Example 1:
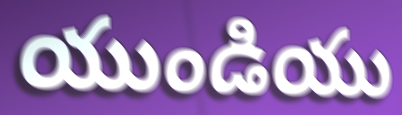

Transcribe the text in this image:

యుండియు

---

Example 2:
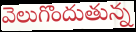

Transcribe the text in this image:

వెలుగొందుతున్న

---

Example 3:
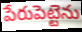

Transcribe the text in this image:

పేరుపెట్టెను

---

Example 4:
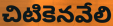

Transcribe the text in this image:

చిటికెనవేలి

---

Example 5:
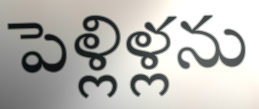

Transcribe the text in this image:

పెళ్లిళ్లను